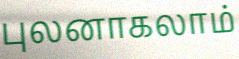
புலனாகலாம்